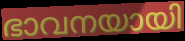
ഭാവനയായി